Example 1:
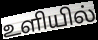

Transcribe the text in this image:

உளியில்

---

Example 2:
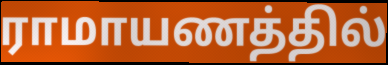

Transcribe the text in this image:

ராமாயணத்தில்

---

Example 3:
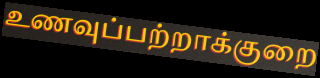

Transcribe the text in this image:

உணவுப்பற்றாக்குறை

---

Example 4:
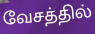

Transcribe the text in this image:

வேசத்தில்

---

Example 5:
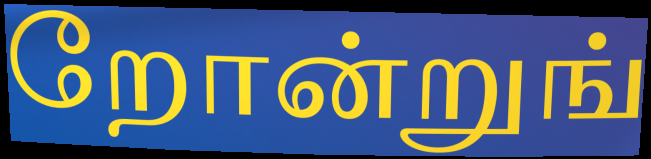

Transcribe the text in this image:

றோன்றுங்